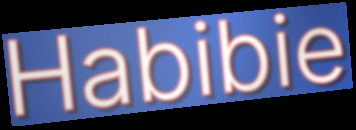
Habibie